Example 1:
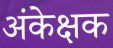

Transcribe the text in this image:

अंकेक्षक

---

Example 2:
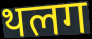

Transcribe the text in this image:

थलग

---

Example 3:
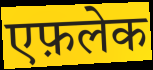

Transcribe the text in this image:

एफ़लेक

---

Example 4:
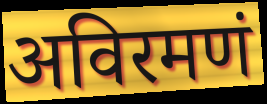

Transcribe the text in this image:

अविरमणं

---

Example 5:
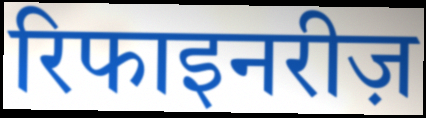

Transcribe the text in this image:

रिफाइनरीज़